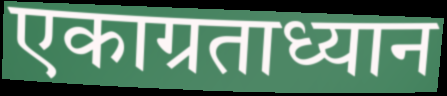
एकाग्रताध्यान